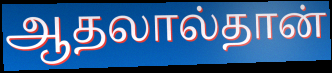
ஆதலால்தான்